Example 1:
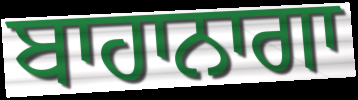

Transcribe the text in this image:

ਬਾਹਾਨਾਗਾ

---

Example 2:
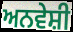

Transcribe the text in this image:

ਅਨਵੇਸ਼ੀ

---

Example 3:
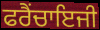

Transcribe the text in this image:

ਫਰੈਂਚਾਇਜੀ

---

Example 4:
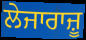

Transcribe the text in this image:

ਲੇਜਾਰਾਜ਼ੂ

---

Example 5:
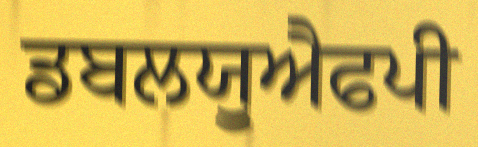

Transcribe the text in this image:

ਡਬਲਯੂਐਫਪੀ